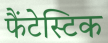
फैंटेस्टिक